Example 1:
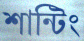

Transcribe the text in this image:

শান্টিং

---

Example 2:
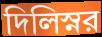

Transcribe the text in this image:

দিলিস্নর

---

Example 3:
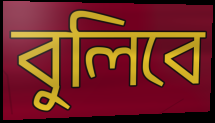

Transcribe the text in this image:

বুলিবে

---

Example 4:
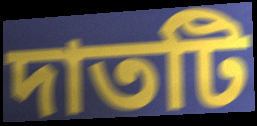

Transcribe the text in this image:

দাতটি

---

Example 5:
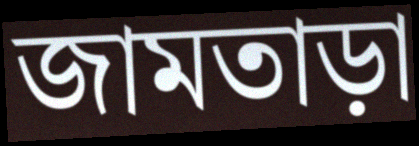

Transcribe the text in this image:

জামতাড়া